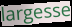
largesse